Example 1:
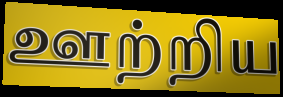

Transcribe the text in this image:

ஊற்றிய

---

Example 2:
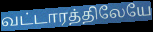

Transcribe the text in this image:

வட்டாரத்திலேயே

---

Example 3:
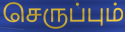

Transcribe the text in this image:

செருப்பும்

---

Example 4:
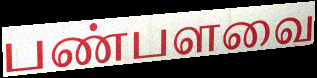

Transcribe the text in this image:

பண்பளவை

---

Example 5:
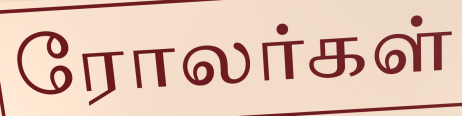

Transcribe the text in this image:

ரோலர்கள்